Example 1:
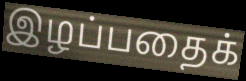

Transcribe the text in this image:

இழப்பதைக்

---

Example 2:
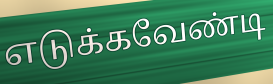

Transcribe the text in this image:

எடுக்கவேண்டி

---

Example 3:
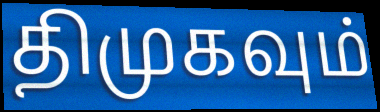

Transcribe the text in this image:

திமுகவும்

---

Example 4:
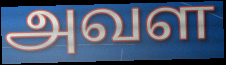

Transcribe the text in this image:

அவள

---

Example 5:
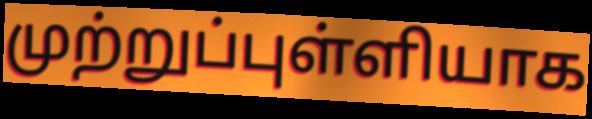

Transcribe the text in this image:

முற்றுப்புள்ளியாக